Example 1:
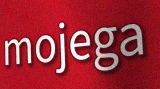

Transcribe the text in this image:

mojega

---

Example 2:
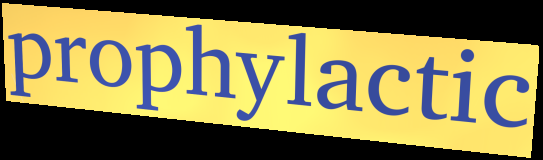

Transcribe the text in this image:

prophylactic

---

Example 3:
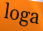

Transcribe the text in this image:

loga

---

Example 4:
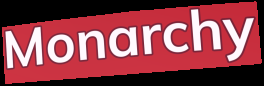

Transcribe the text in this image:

Monarchy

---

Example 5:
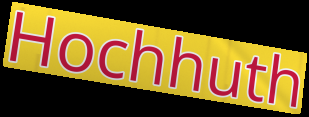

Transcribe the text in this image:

Hochhuth